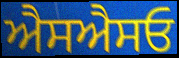
ਐਸਐਸਓ